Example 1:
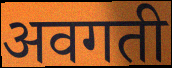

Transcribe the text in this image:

अवगती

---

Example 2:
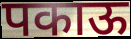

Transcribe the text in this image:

पकाऊ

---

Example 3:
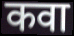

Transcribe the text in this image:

कवा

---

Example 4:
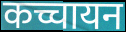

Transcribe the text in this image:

कच्चायन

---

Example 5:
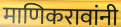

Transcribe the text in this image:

माणिकरावांनी